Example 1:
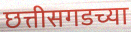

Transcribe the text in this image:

छत्तीसगडच्या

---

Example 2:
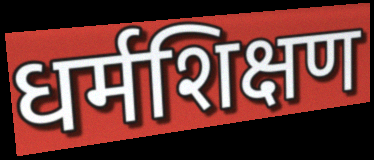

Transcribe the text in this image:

धर्मशिक्षण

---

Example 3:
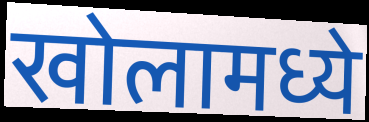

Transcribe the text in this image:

खोलामध्ये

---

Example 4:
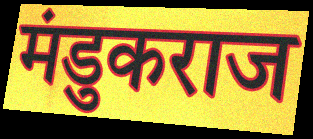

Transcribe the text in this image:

मंडुकराज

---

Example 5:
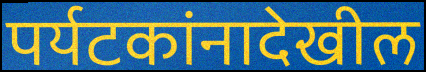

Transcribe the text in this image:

पर्यटकांनादेखील